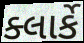
ક્લાર્કે